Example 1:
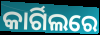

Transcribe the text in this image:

କାର୍ଗିଲରେ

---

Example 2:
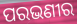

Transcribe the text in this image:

ପରଭଣୀର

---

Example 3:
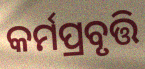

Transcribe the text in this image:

କର୍ମପ୍ରବୃତ୍ତି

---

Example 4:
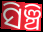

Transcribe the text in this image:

ସିଞ୍ଚି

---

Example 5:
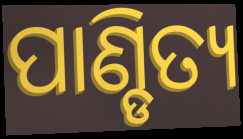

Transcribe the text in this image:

ପାଣ୍ଡିତ୍ୟ